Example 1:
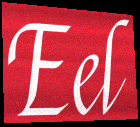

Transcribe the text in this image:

Eel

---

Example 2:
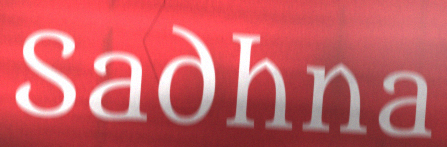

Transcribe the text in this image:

Sadhna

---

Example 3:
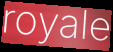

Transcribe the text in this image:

royale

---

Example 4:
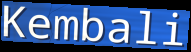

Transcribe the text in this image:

Kembali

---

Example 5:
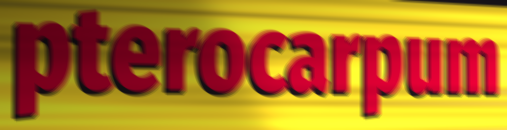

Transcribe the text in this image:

pterocarpum